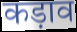
कड़ाव